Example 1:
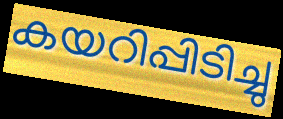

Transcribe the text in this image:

കയറിപ്പിടിച്ചു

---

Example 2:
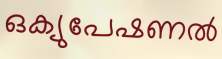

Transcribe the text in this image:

ഒക്യുപേഷണൽ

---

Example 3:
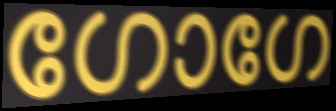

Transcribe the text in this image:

ഗോഗേ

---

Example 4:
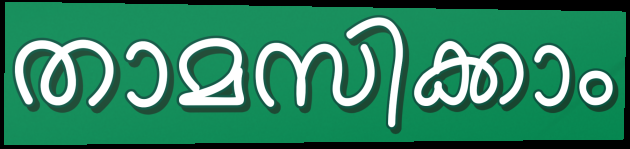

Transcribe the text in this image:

താമസിക്കാം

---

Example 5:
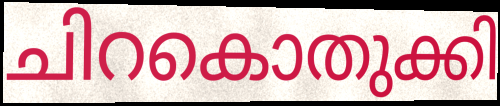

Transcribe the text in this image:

ചിറകൊതുക്കി